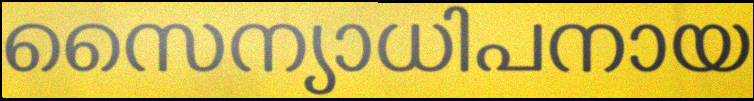
സൈന്യാധിപനായ